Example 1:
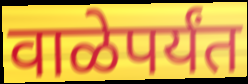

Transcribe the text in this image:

वाळेपर्यंत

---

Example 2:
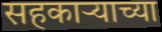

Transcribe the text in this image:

सहकार्‍याच्या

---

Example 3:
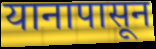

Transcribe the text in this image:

यानापासून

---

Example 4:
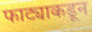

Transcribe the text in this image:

फाट्याकडून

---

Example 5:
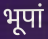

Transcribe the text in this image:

भूपां